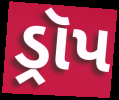
ડ્રૉપ